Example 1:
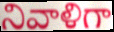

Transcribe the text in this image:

నివాళిగా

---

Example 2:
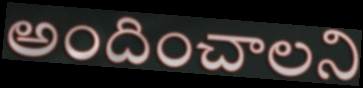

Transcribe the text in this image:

అందించాలని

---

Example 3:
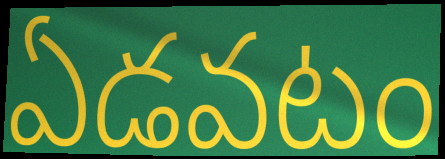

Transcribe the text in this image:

ఏడవటం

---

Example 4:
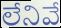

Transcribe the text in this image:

లేనివే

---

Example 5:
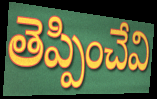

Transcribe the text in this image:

తెప్పించేవి